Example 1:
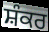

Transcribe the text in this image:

ਸ਼ੰਕਰ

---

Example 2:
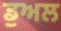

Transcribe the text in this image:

ਡੁਅਲ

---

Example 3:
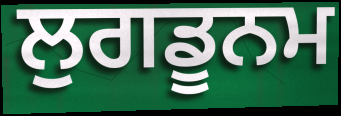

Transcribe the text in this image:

ਲੁਗਡੂਨਮ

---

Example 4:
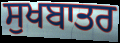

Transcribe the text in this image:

ਸੁਖਬਾਤਰ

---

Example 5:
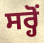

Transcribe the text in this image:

ਸਰ੍ਹੋਂ